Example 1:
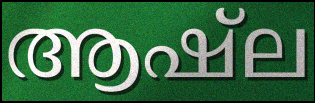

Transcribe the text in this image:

ആഷ്ല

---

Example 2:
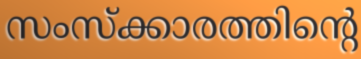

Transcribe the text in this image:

സംസ്ക്കാരത്തിന്റെ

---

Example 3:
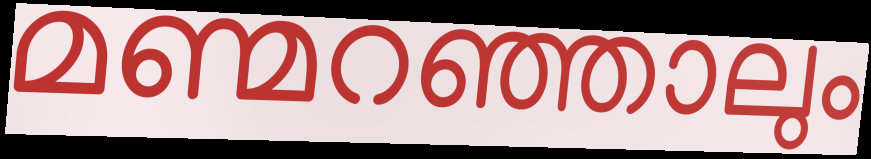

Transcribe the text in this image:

മണ്മറഞ്ഞാലും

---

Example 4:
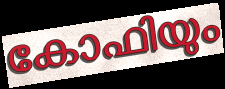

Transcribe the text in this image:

കോഫിയും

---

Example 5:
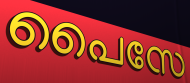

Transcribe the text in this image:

പൈസേ